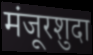
मंजूरशुदा